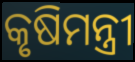
କୃଷିମନ୍ତ୍ରୀ